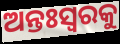
ଅନ୍ତଃସ୍ୱରକୁ